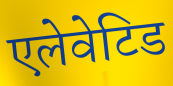
एलेवेटिड